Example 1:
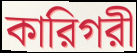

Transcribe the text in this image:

কারিগরী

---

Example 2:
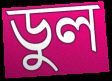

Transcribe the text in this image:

ডুল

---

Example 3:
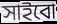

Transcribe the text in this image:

সাইবো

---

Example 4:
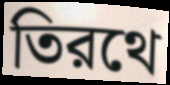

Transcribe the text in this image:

তিরথে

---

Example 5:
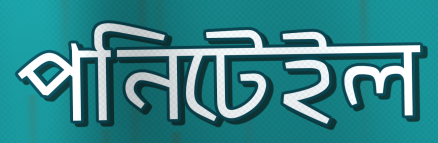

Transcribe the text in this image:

পনিটেইল